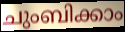
ചുംബിക്കാം